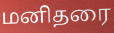
மனிதரை